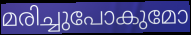
മരിച്ചുപോകുമോ